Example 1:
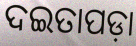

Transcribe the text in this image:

ଦଇତାପଡ଼ା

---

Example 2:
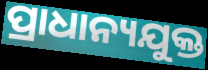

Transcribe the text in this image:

ପ୍ରାଧାନ୍ୟଯୁକ୍ତ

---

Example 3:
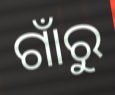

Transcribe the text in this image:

ଗାଁରୁ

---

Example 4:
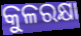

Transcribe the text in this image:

କୁଳରକ୍ଷା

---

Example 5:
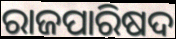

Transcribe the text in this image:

ରାଜପାରିଷଦ